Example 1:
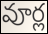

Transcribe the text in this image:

వూర్ల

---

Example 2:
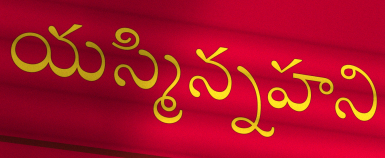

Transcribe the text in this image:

యస్మిన్నహని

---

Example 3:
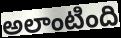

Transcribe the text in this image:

అలాంటింది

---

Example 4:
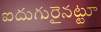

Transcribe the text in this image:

ఐదుగురైనట్టూ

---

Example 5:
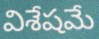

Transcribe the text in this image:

విశేషమే